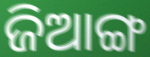
ଜିଆଙ୍ଗ